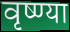
वृष्ण्या